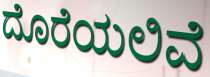
ದೊರೆಯಲಿವೆ